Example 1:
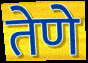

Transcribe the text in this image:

तेणे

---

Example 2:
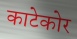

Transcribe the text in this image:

काटेकोर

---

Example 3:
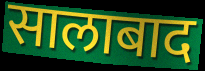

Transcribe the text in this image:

सालाबाद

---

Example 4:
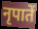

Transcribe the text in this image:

नृपातें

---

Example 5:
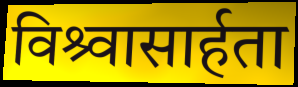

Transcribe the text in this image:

विश्र्वासार्हता